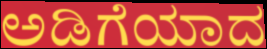
ಅಡಿಗೆಯಾದ